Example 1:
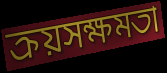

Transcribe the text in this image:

ক্রয়সক্ষমতা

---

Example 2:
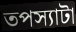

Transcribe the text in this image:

তপস্যাটা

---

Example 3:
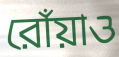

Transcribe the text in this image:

রোঁয়াও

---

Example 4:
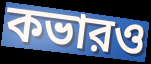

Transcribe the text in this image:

কভারও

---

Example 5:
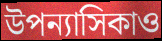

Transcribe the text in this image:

উপন্যাসিকাও